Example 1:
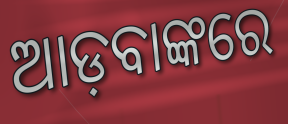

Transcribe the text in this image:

ଆଡ଼ବାଙ୍କରେ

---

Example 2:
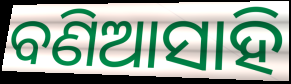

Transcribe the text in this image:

ବଣିଆସାହି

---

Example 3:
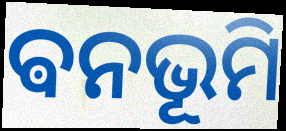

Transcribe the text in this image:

ଵନଭୂମି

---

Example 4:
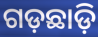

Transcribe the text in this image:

ଗଡ଼ଛାଡ଼ି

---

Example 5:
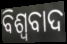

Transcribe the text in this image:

ବିଶ୍ୱବାଦ